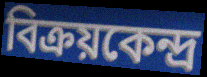
বিক্রয়কেন্দ্র